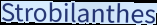
Strobilanthes